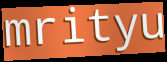
mrityu